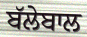
ਬੱਲੇਬਾਲ